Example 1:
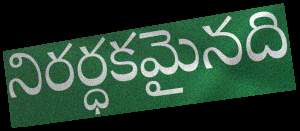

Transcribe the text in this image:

నిరర్ధకమైనది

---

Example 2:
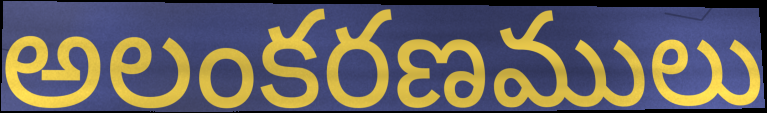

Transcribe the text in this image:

అలంకరణములు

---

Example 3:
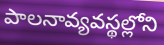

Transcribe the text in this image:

పాలనావ్యవస్థల్లోని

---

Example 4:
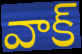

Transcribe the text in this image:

వాక్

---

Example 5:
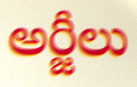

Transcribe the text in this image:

అర్జీలు